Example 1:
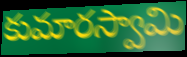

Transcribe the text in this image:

కుమారస్వామి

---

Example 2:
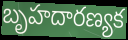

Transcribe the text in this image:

బృహదారణ్యక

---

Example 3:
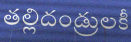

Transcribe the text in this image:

తల్లిదండ్రులకీ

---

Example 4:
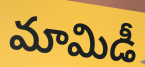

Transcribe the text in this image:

మామిడీ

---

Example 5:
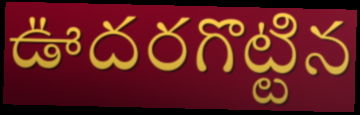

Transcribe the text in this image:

ఊదరగొట్టిన